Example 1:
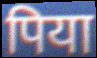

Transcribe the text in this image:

पिया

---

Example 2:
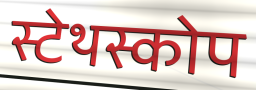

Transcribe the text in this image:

स्टेथस्कोप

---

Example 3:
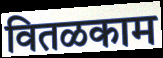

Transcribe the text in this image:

वितळकाम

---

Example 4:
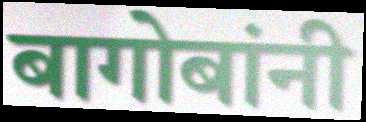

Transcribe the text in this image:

बागोबांनी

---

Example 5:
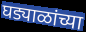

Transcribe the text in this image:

घड्याळांच्या